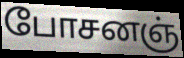
போசனஞ்